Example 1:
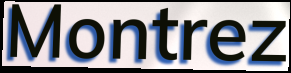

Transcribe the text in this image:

Montrez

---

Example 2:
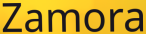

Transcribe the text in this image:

Zamora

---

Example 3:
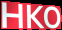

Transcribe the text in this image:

HKO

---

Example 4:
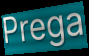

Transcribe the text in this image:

Prega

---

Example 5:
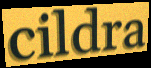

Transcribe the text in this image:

cildra